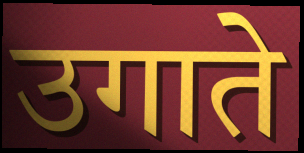
उगाते